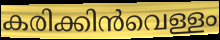
കരിക്കിൻവെള്ളം